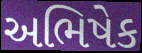
અભિષેક